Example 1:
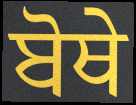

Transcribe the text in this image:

ਬੋਥੇ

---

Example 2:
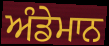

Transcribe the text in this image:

ਅੰਡੇਮਾਨ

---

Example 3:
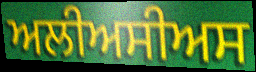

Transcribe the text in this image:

ਅਲੀਅਸੀਅਸ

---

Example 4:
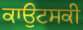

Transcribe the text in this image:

ਕਾਉਟਸਕੀ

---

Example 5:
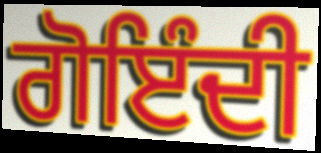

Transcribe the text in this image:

ਗੋਇੰਦੀ